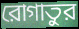
রোগাতুর